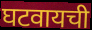
घटवायची